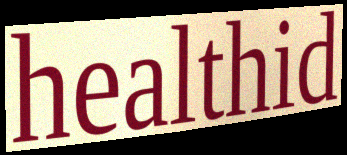
healthid